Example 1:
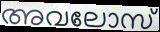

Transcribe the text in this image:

അവലോസ്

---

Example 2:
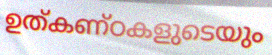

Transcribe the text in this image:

ഉത്കണ്ഠകളുടെയും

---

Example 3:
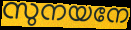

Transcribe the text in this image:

സുനയനേ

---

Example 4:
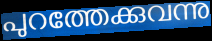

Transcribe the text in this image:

പുറത്തേക്കുവന്നു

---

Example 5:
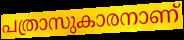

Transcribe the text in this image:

പത്രാസുകാരനാണ്